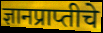
ज्ञानप्राप्तीचे